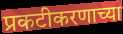
प्रकटीकरणाच्या